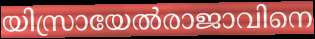
യിസ്രായേൽരാജാവിനെ